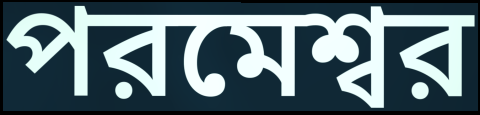
পরমেশ্বর